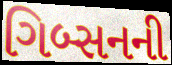
ગિબ્સનની